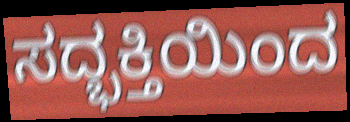
ಸದ್ಭಕ್ತಿಯಿಂದ